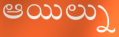
ఆయిల్ను